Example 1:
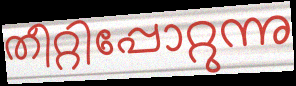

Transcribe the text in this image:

തീറ്റിപ്പോറ്റുന്നു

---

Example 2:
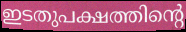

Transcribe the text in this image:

ഇടതുപക്ഷത്തിന്റെ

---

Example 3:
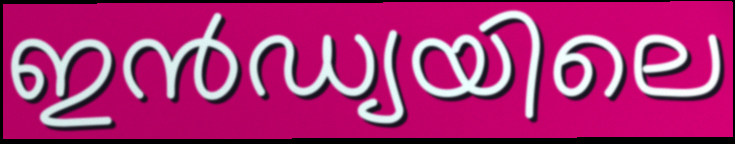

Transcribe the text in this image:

ഇൻഡ്യയിലെ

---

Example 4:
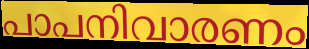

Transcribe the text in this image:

പാപനിവാരണം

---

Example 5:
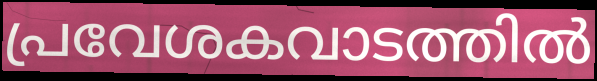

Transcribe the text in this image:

പ്രവേശകവാടത്തിൽ